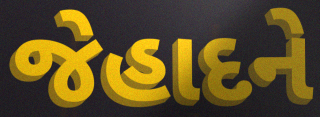
જેહાદને